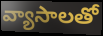
వ్యాసాలతో